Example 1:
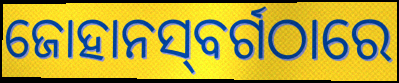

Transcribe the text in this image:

ଜୋହାନସ୍‌ବର୍ଗଠାରେ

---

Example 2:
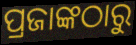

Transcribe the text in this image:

ପ୍ରଜାଙ୍କଠାରୁ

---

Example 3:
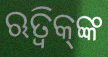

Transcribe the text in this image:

ଋତ୍ୱିକ୍‌ଙ୍କ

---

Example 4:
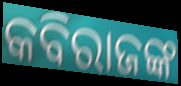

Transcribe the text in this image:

କବିରାଜଙ୍କ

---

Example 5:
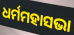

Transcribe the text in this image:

ଧର୍ମମହାସଭା